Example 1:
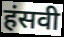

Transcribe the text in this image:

हंसवी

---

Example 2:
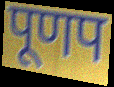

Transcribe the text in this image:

पूणप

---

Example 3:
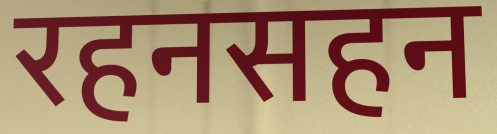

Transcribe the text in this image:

रहनसहन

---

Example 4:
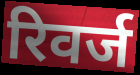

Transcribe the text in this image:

रिवर्ज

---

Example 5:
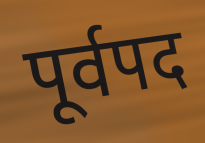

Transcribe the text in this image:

पूर्वपद